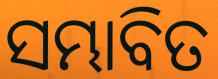
ସମ୍ଭାବିତ